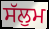
ਸੱਲੁਮ